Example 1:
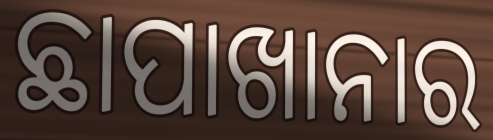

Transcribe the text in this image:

ଛାପାଖାନାର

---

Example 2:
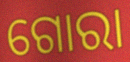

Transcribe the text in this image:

ଗୋରା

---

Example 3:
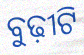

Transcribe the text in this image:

ବୁଢ଼ୀଟି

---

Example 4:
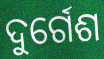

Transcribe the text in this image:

ଦୁର୍ଗେଶ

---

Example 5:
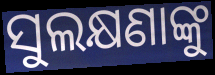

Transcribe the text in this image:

ସୁଲକ୍ଷଣାଙ୍କୁ